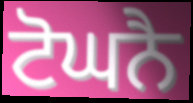
ਟੋਘਨੈ